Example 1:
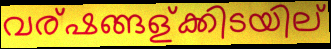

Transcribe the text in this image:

വര്ഷങ്ങള്ക്കിടയില്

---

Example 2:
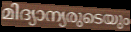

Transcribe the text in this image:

മിദ്യാന്യരുടെയും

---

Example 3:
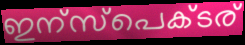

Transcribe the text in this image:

ഇന്സ്പെക്ടര്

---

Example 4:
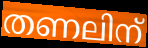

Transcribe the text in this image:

തണലിന്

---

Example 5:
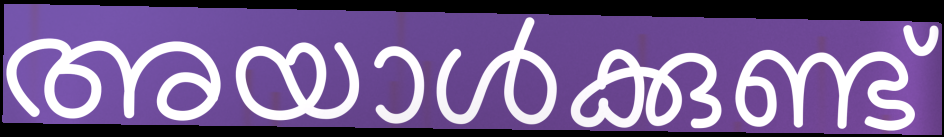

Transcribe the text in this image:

അയാൾക്കുണ്ട്